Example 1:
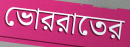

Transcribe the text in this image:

ভোররাতের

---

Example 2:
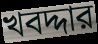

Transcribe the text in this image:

খবদ্দার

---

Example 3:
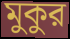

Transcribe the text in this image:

মুকুর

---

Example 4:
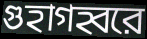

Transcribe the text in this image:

গুহাগহ্বরে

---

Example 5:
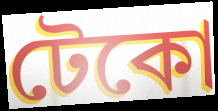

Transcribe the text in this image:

টেকো